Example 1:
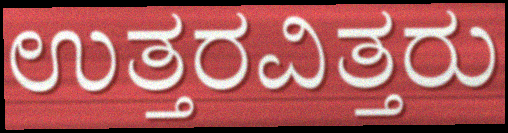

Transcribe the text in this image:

ಉತ್ತರವಿತ್ತರು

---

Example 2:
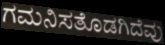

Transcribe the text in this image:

ಗಮನಿಸತೊಡಗಿದೆವು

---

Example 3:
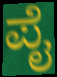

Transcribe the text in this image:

ಪೈ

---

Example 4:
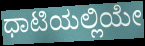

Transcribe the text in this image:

ಧಾಟಿಯಲ್ಲಿಯೇ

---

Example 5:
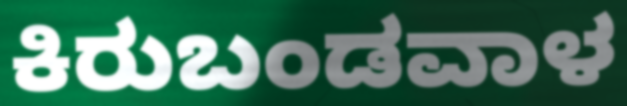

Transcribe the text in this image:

ಕಿರುಬಂಡವಾಳ